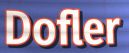
Dofler